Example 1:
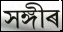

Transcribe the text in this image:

সঙ্গীৰ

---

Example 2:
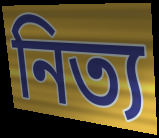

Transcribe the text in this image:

নিত্য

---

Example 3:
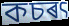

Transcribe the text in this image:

কচৰৎ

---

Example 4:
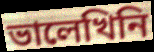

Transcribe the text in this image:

ভালেখিনি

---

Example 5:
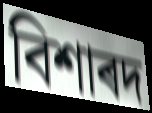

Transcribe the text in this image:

বিশাৰদ